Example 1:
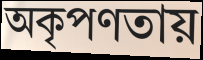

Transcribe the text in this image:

অকৃপণতায়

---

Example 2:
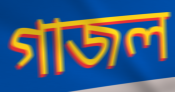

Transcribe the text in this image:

গাজল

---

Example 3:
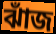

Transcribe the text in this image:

ঝাঁজ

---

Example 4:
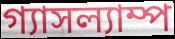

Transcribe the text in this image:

গ্যাসল্যাম্প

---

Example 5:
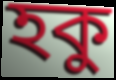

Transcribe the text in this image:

হকু